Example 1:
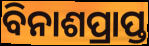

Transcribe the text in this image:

ବିନାଶପ୍ରାପ୍ତ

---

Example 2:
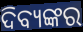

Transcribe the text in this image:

ଦିବ୍ୟଙ୍କର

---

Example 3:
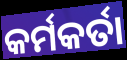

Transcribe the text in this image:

କର୍ମକର୍ତା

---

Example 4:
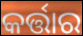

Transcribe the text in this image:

କର୍ତ୍ତାର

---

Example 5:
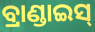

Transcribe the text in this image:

ବ୍ରାଣ୍ଡାଇସ୍